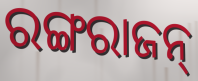
ରଙ୍ଗରାଜନ୍